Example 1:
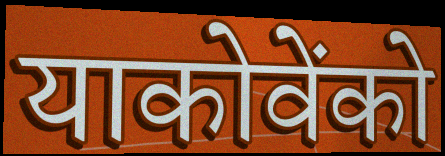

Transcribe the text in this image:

याकोवेंको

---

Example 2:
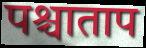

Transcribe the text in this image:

पश्चाताप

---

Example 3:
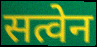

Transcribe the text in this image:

सत्वेन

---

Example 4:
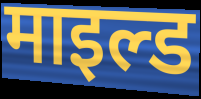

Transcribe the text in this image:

माइल्ड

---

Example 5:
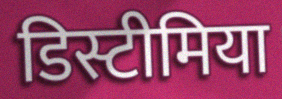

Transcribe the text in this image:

डिस्टीमिया